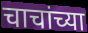
चाचांच्या